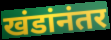
खंडांनंतर